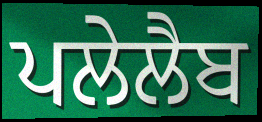
ਪਲੇਲੈਬ